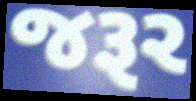
જરૂર